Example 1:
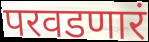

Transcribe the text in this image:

परवडणारं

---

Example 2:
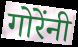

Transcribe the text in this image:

गोरेंनी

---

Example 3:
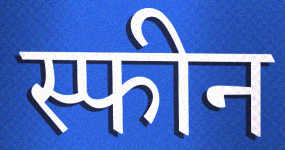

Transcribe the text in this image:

स्फीन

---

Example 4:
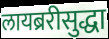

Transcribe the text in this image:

लायब्ररीसुद्धा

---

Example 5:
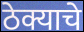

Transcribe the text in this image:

ठेक्याचे